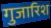
गुजारिश